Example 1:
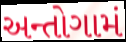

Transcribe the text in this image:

અન્તોગામં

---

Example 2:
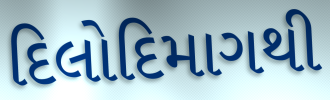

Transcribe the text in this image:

દિલોદિમાગથી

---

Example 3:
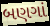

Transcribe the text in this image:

બણગાં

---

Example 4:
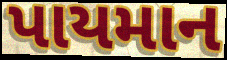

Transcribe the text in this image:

પાયમાન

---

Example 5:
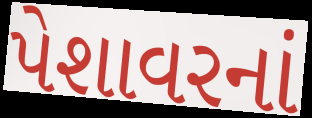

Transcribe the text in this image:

પેશાવરનાં